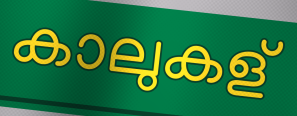
കാലുകള്